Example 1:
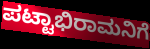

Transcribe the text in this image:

ಪಟ್ಟಾಭಿರಾಮನಿಗೆ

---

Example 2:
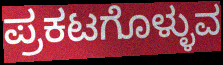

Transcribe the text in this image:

ಪ್ರಕಟಗೊಳ್ಳುವ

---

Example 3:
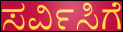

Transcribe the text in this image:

ಸರ್ವಿಸಿಗೆ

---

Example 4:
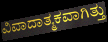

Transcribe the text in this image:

ವಿವಾದಾತ್ಮಕವಾಗಿತ್ತು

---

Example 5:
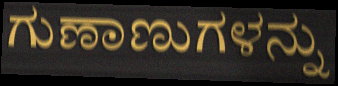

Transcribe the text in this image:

ಗುಣಾಣುಗಳನ್ನು